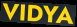
VIDYA